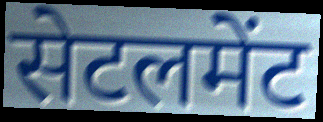
सेटलमेंट